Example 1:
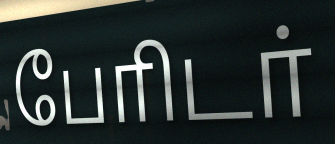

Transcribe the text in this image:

பேரிடர்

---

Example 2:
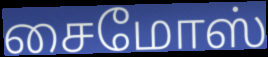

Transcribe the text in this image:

சைமோஸ்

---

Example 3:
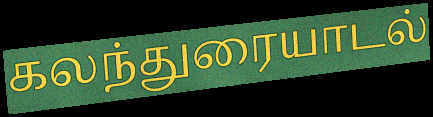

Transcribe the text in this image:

கலந்துரையாடல்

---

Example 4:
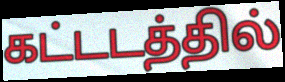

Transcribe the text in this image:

கட்டடத்தில்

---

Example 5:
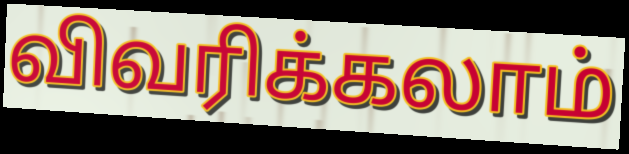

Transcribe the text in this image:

விவரிக்கலாம்